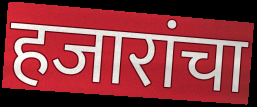
हजारांचा